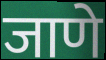
जाणे